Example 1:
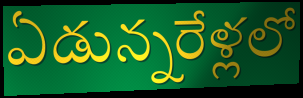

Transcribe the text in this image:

ఏడున్నరేళ్లలో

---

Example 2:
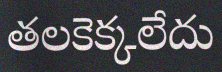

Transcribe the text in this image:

తలకెక్కలేదు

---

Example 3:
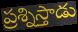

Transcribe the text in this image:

ప్రశ్నిస్తాడు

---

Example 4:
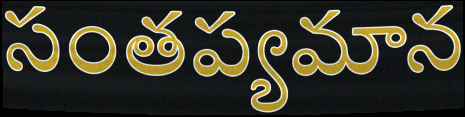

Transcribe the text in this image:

సంతప్యమాన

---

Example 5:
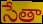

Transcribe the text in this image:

సేతా